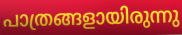
പാത്രങ്ങളായിരുന്നു